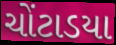
ચોંટાડયા